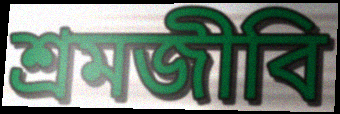
শ্রমজীবি